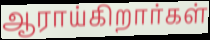
ஆராய்கிறார்கள்